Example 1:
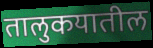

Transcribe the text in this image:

तालुकयातील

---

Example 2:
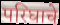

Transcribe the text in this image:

परिघाचे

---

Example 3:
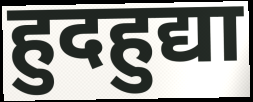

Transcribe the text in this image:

हुदहुद्या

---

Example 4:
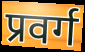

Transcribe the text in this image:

प्रवर्ग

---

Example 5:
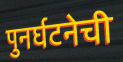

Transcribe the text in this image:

पुनर्घटनेची